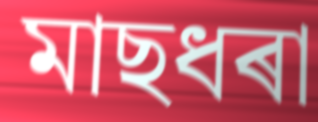
মাছধৰা